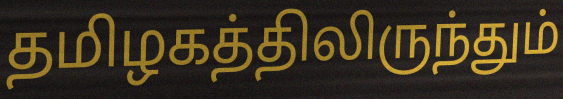
தமிழகத்திலிருந்தும்